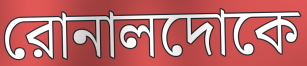
রোনালদোকে